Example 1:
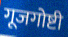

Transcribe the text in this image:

गूजगोष्टी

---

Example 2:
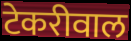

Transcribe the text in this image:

टेकरीवाल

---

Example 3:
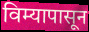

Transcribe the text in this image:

विम्यापासून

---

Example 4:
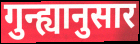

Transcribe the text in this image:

गुन्ह्यानुसार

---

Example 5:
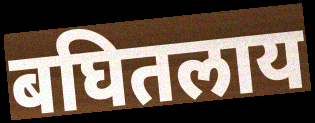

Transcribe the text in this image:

बघितलाय